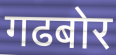
गढबोर